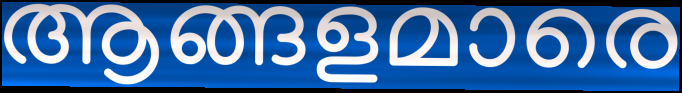
ആങ്ങളമാരെ